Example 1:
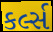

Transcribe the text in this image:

કર્લ્સ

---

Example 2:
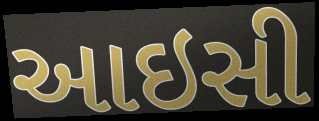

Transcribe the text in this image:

આઇસી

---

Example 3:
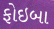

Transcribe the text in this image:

ફોઇબા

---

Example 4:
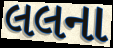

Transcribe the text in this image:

લલના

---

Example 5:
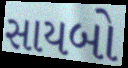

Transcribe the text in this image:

સાયબો